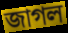
জাগল